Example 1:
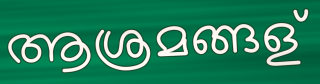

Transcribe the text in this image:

ആശ്രമങ്ങള്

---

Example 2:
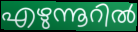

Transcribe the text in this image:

എഴുന്നൂറിൽ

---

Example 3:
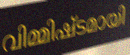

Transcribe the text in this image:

വിമ്മിഷ്ടമായി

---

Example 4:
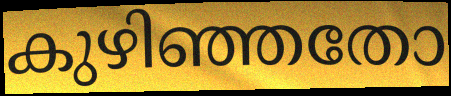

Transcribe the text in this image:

കുഴിഞ്ഞതോ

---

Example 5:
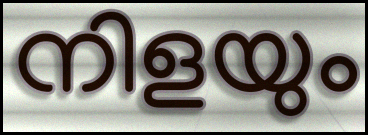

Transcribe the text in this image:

നിളയും